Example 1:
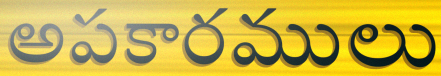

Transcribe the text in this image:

అపకారములు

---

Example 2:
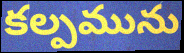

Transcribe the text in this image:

కల్పమును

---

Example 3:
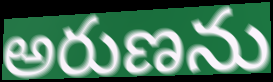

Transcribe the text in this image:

అరుణను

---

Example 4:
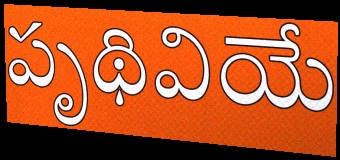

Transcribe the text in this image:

పృథివియే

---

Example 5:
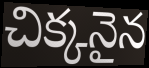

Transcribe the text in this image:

చిక్కనైన